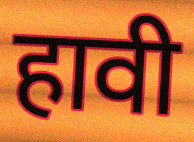
हावी